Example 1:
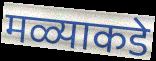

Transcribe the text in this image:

मळ्याकडे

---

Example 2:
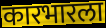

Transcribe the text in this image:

कारभारला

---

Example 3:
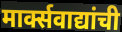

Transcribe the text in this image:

मार्क्सवाद्यांची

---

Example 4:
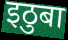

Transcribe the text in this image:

इठुबा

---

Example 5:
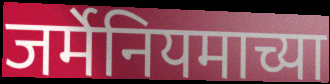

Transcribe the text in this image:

जर्मेनियमाच्या